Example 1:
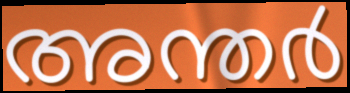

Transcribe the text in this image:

അന്തർ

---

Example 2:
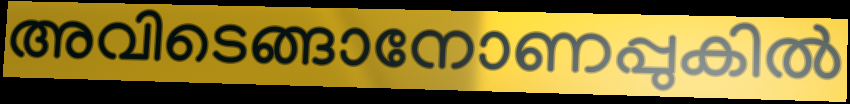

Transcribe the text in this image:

അവിടെങ്ങാനോണപ്പുകിൽ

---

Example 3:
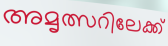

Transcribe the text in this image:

അമൃത്സറിലേക്ക്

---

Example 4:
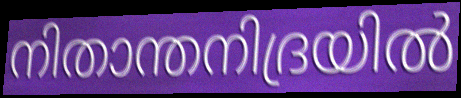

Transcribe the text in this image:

നിതാന്തനിദ്രയിൽ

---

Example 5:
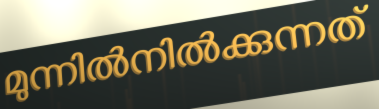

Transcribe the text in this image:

മുന്നിൽനിൽക്കുന്നത്